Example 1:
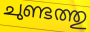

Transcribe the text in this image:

ചുണ്ടത്തു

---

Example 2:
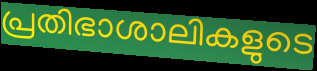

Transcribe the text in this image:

പ്രതിഭാശാലികളുടെ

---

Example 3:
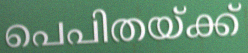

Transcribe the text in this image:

പെപിതയ്ക്ക്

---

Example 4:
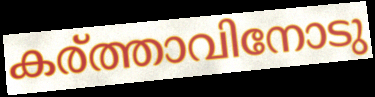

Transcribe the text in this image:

കര്ത്താവിനോടു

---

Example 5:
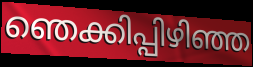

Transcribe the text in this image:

ഞെക്കിപ്പിഴിഞ്ഞ